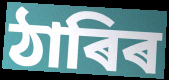
ঠাৰিৰ